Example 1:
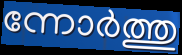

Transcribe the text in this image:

ന്നോർത്തു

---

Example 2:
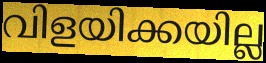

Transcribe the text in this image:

വിളയിക്കയില്ല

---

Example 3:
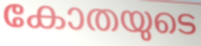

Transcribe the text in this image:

കോതയുടെ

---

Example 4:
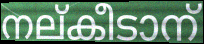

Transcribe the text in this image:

നല്കീടാന്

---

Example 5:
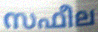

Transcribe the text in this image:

സഫീല